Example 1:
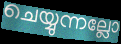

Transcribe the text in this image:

ചെയ്യുന്നല്ലോ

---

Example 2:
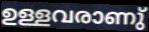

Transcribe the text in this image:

ഉള്ളവരാണു്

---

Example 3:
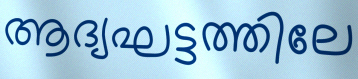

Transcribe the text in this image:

ആദ്യഘട്ടത്തിലേ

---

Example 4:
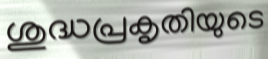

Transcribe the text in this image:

ശുദ്ധപ്രകൃതിയുടെ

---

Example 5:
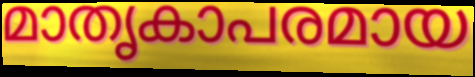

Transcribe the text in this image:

മാതൃകാപരമായ